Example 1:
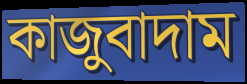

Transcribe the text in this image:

কাজুবাদাম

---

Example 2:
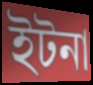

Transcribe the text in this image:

ইটনা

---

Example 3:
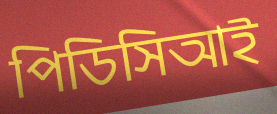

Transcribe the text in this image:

পিডিসিআই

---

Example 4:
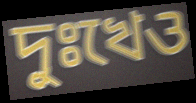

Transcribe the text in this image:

দুঃখেও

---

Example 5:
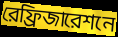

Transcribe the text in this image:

রেফ্রিজারেশনে